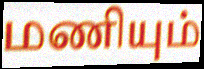
மணியும்